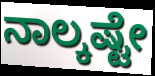
ನಾಲ್ಕಷ್ಟೇ